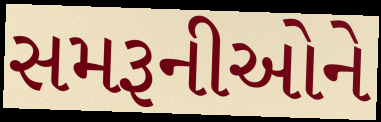
સમરૂનીઓને